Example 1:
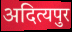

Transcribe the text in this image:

अदित्यपुर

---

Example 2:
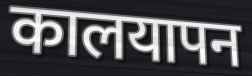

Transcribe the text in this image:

कालयापन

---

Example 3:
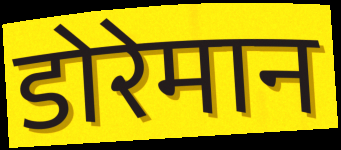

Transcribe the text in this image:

डोरेमान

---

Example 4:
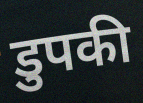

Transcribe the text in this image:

डुपकी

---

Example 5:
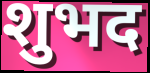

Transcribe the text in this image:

शुभद